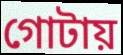
গোটায়